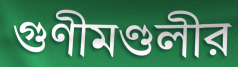
গুণীমণ্ডলীর